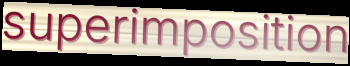
superimposition